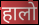
हालो